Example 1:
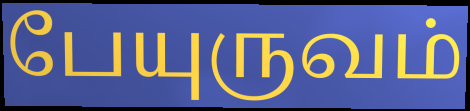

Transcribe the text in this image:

பேயுருவம்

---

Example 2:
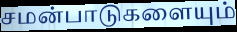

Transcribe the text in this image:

சமன்பாடுகளையும்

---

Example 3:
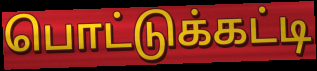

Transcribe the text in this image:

பொட்டுக்கட்டி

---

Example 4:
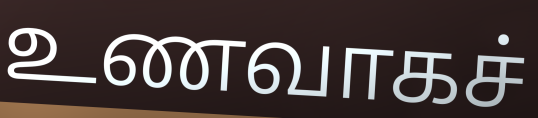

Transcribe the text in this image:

உணவாகச்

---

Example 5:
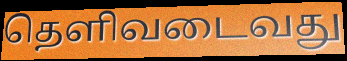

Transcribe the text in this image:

தெளிவடைவது